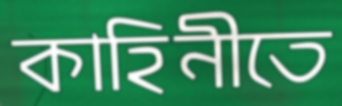
কাহিনীতে